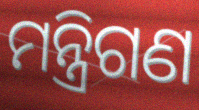
ମନ୍ତ୍ରିଗଣ